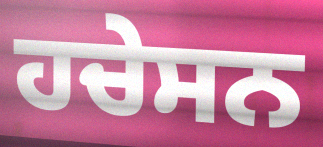
ਹਚੇਸਨ